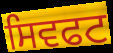
ਸਿਵਫਟ